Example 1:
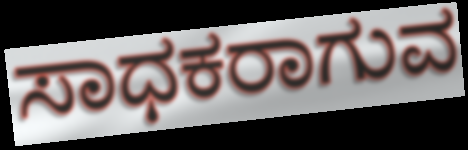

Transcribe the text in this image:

ಸಾಧಕರಾಗುವ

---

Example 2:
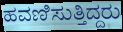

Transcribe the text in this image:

ಹವಣಿಸುತ್ತಿದ್ದರು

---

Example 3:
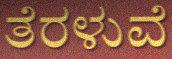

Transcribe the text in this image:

ತೆರಳುವೆ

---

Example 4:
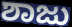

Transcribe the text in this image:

ಶಾಜು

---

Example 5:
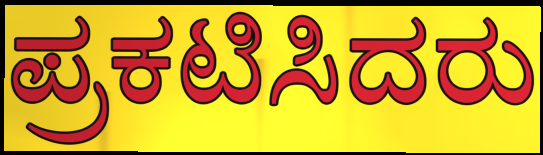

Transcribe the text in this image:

ಪ್ರಕಟಿಸಿದರು